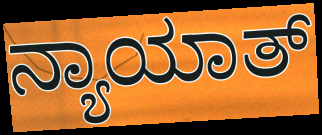
ನ್ಯಾಯಾತ್